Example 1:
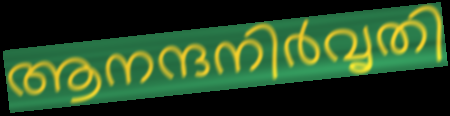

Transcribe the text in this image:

ആനന്ദനിർവൃതി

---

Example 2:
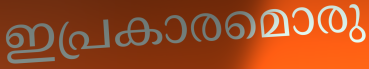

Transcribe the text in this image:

ഇപ്രകാരമൊരു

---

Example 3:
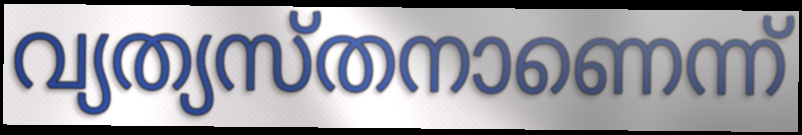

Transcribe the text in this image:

വ്യത്യസ്തനാണെന്ന്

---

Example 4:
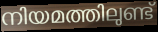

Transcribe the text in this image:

നിയമത്തിലുണ്ട്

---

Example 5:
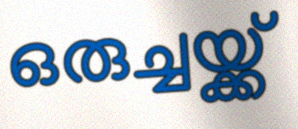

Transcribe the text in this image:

ഒരുച്ചയ്ക്ക്